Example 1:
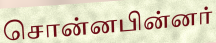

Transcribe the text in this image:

சொன்னபின்னர்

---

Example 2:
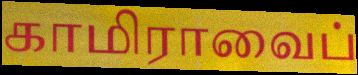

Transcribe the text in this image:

காமிராவைப்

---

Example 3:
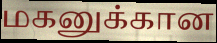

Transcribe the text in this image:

மகனுக்கான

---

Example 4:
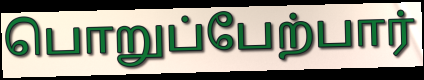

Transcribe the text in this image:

பொறுப்பேற்பார்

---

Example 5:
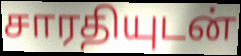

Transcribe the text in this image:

சாரதியுடன்